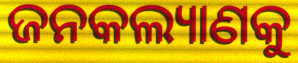
ଜନକଲ୍ୟାଣକୁ